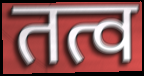
तत्व